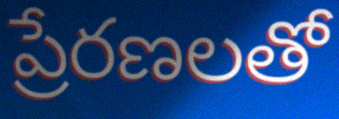
ప్రేరణలతో